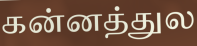
கன்னத்துல